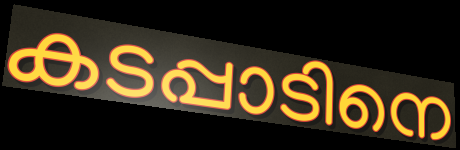
കടപ്പാടിനെ